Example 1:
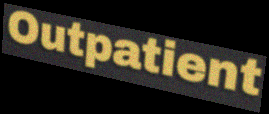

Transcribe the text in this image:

Outpatient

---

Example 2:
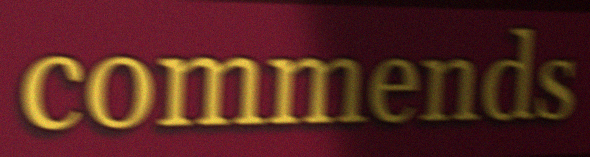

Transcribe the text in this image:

commends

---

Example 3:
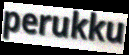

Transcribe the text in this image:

perukku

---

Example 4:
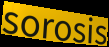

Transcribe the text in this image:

sorosis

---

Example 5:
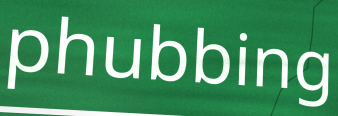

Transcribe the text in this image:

phubbing